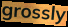
grossly